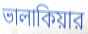
ভালাকিয়ার